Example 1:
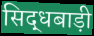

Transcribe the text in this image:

सिद्धबाड़ी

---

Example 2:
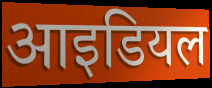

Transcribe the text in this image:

आइडियल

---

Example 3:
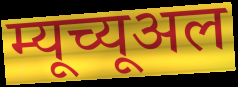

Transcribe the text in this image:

म्यूच्यूअल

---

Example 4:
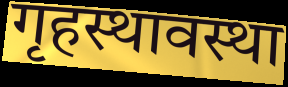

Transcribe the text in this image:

गृहस्थावस्था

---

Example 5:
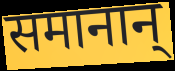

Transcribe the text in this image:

समानान्